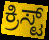
ಕ್ರಿಸ್ಟ್